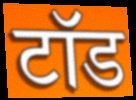
टॉड